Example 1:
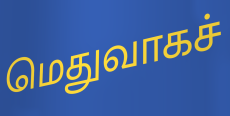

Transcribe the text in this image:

மெதுவாகச்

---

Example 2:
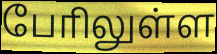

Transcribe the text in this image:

பேரிலுள்ள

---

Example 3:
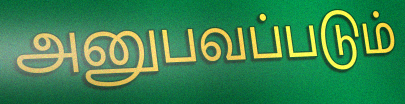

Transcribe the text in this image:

அனுபவப்படும்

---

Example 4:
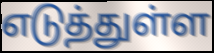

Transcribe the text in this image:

எடுத்துள்ள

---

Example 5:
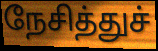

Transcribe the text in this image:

நேசித்துச்